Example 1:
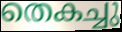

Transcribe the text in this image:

തെകച്ചു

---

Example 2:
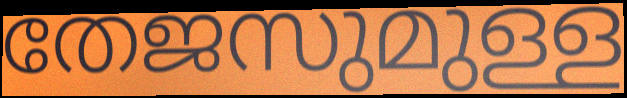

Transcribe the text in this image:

തേജസുമുള്ള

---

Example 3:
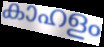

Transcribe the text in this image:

കാഹളം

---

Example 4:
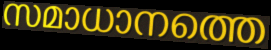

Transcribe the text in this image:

സമാധാനത്തെ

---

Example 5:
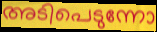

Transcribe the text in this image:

അടിപെടുന്നോ